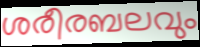
ശരീരബലവും